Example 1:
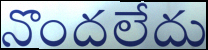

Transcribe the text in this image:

నొందలేదు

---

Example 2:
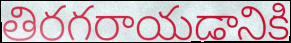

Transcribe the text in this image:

తిరగరాయడానికి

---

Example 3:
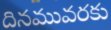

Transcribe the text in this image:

దినమువరకు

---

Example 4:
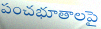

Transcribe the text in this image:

పంచభూతాలపై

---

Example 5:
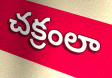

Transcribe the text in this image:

చక్రంలా